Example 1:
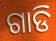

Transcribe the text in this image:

ଗାଡି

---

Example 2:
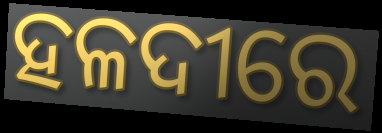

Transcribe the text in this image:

ହଳଦୀରେ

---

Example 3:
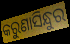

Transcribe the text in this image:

କରୁଣାସିନ୍ଧୁର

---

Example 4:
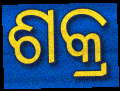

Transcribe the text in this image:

ଶକ୍ର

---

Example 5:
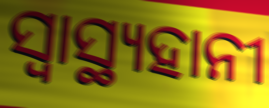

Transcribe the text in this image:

ସ୍ବାସ୍ଥ୍ୟହାନୀ